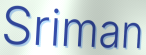
Sriman